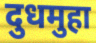
दुधमुहा